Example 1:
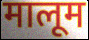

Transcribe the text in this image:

मालूम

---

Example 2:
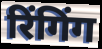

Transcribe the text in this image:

रिंगिंग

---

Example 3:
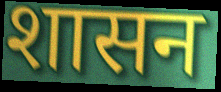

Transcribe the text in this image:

शासन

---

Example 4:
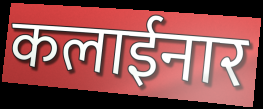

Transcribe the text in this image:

कलाईनार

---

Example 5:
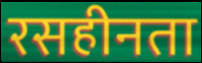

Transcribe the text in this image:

रसहीनता